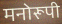
मनोरूपी